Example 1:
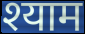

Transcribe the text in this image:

श्‍याम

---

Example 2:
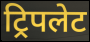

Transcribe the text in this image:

ट्रिपलेट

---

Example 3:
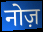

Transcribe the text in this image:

नोज़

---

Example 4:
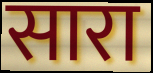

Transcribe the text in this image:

सारा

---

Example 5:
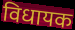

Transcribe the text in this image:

विधायक